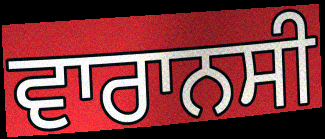
ਵਾਰਾਨਸੀ